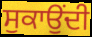
ਸੁਕਾਉਂਦੀ